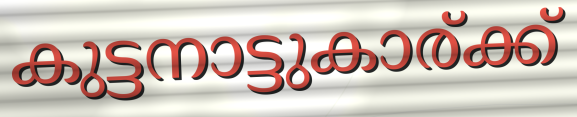
കുട്ടനാട്ടുകാര്ക്ക്